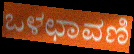
ಒಳಛಾವಣಿ